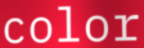
color